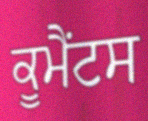
ਕੂਮੈਂਟਸ